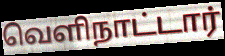
வெளிநாட்டார்